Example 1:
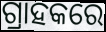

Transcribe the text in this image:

ଗ୍ରାହକରେ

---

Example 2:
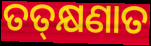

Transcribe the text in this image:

ତତ୍‍କ୍ଷଣାତ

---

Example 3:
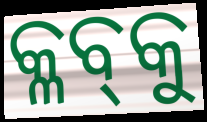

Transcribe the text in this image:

କ୍ଳବ୍‌କୁ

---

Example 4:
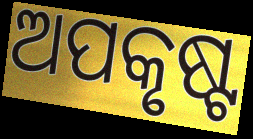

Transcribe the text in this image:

ଅପକୃଷ୍ଟ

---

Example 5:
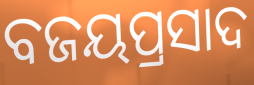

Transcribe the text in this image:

ବଜୟପ୍ରସାଦ